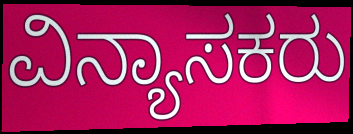
ವಿನ್ಯಾಸಕರು